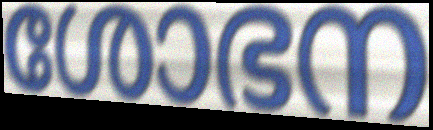
ശോഭന